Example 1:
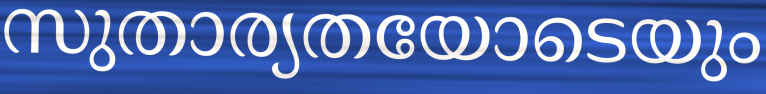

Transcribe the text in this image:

സുതാര്യതയോടെയും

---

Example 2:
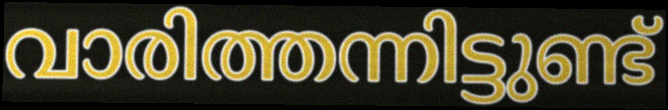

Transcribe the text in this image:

വാരിത്തന്നിട്ടുണ്ട്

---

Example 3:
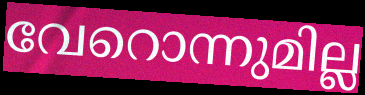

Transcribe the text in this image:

വേറൊന്നുമില്ല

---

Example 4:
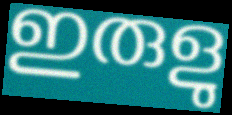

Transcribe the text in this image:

ഇരുളു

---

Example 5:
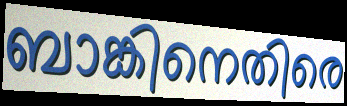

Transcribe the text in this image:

ബാങ്കിനെതിരെ